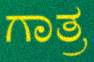
ಗಾತ್ರ